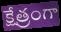
క్షేత్రంగా